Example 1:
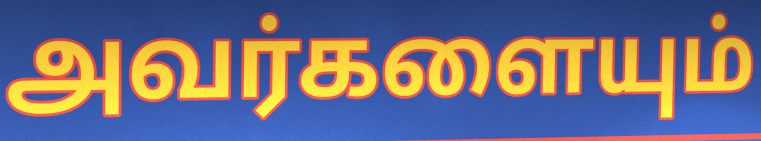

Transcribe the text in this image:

அவர்களையும்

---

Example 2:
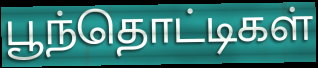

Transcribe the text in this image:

பூந்தொட்டிகள்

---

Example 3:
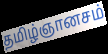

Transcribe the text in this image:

தமிழ்ஞானசம்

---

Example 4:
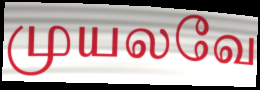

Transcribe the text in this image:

முயலவே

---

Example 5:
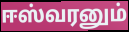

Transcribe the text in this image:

ஈஸ்வரனும்